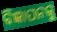
ବିଜ୍ଞାପନକୁ